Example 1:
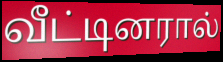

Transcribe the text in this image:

வீட்டினரால்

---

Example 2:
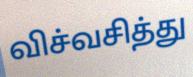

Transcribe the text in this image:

விச்வசித்து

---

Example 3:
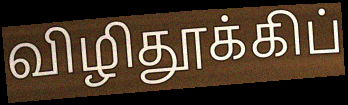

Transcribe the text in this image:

விழிதூக்கிப்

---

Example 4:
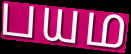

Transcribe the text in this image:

பயம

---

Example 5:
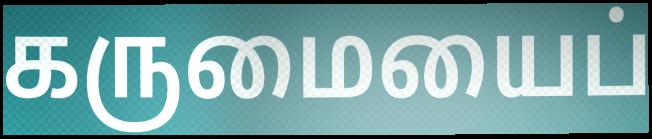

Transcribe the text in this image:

கருமையைப்